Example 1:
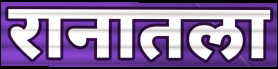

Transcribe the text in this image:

रानातला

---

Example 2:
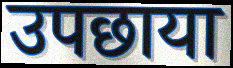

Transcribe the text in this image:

उपछाया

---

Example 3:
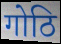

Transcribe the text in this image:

गोठि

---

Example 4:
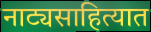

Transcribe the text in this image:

नाट्यसाहित्यात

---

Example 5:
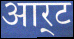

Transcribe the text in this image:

आर्ट